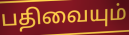
பதிவையும்